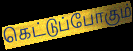
கெட்டுப்போகும்